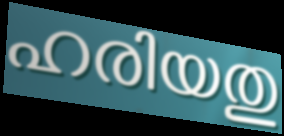
ഹരിയതു